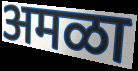
अमळा